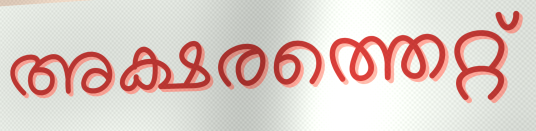
അക്ഷരത്തെറ്റ്